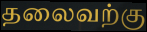
தலைவற்கு